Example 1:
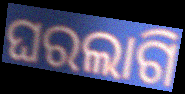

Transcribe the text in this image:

ଘରଲାଗି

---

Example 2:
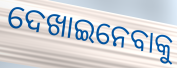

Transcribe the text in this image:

ଦେଖାଇନେବାକୁ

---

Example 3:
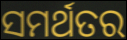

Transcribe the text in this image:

ସମର୍ଥତର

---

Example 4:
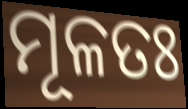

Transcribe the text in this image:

ମୂଳତଃ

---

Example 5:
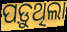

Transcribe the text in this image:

ପଡ଼ୁଥିଲା